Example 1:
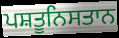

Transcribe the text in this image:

ਪਸ਼ਤੂਨਿਸਤਾਨ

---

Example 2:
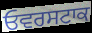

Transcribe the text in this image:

ਓਵਰਸਟਾਕ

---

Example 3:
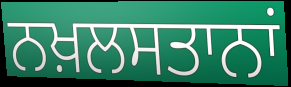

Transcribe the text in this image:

ਨਖ਼ਲਸਤਾਨਾਂ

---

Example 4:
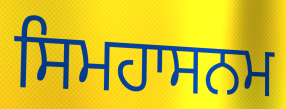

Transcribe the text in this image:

ਸਿਮਹਾਸਨਮ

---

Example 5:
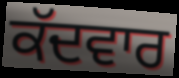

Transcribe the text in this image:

ਕੱਦਵਾਰ